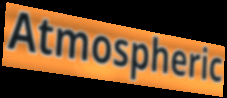
Atmospheric